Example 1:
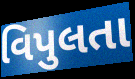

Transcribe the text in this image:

વિપુલતા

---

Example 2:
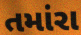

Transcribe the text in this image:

તમાંરા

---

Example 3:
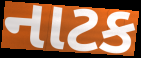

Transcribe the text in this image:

નાટક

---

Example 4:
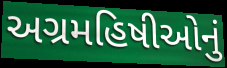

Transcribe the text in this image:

અગ્રમહિષીઓનું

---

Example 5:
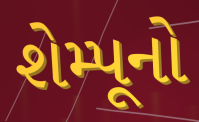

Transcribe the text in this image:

શેમ્પૂનો